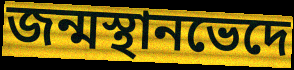
জন্মস্থানভেদে